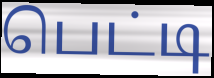
பெட்டி